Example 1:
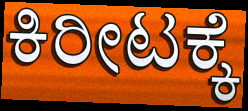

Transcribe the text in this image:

ಕಿರೀಟಕ್ಕೆ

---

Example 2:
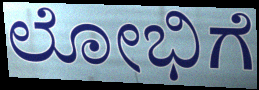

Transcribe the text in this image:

ಲೋಭಿಗೆ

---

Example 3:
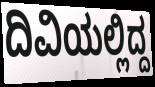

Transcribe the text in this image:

ದಿವಿಯಲ್ಲಿದ್ದ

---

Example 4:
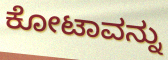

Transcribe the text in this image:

ಕೋಟಾವನ್ನು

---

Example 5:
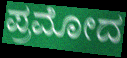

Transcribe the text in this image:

ಪ್ರಮೋದ